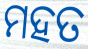
ମହତ